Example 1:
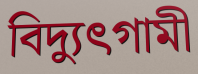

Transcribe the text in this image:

বিদ্যুৎগামী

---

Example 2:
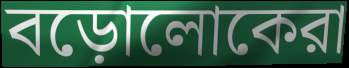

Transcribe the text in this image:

বড়োলোকেরা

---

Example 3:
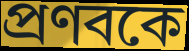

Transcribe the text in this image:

প্রণবকে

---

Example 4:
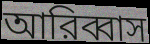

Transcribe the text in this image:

আরিব্বাস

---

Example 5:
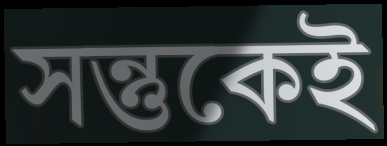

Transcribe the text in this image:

সন্তুকেই